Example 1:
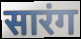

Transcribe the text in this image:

सारंग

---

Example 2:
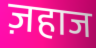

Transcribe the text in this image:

ज़हाज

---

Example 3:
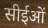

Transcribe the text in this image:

सीईओं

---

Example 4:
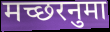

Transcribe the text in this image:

मच्छरनुमा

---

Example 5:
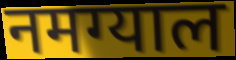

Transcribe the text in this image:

नमग्याल